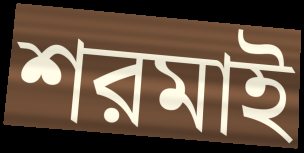
শরমাই